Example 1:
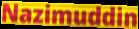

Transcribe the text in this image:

Nazimuddin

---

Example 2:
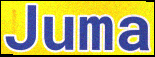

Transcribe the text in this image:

Juma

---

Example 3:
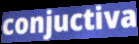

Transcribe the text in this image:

conjuctiva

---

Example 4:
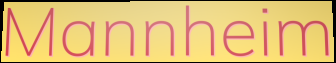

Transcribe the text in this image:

Mannheim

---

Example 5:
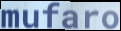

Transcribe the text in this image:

mufaro